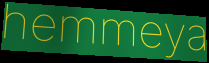
hemmeya